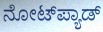
ನೋಟ್‌ಪ್ಯಾಡ್